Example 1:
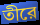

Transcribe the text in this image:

তীরে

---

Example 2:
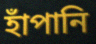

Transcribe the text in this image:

হাঁপানি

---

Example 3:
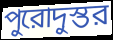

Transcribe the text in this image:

পুরোদুস্তর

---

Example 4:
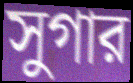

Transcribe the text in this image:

সুগার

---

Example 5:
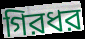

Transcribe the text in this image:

গিরধর